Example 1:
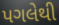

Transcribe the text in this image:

પગલેથી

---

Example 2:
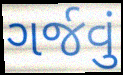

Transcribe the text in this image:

ગર્જવું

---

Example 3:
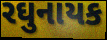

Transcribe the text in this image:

રઘુનાયક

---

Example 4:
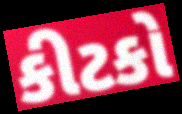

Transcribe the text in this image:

કીટકો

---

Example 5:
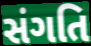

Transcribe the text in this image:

સંગતિ